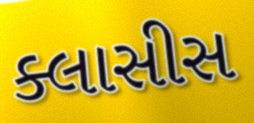
ક્લાસીસ